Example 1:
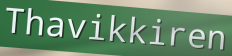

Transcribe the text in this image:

Thavikkiren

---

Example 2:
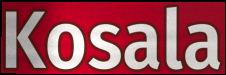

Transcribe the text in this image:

Kosala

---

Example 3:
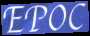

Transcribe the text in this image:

EPOC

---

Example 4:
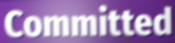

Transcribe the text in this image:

Committed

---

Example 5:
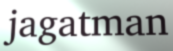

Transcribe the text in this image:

jagatman